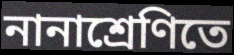
নানাশ্রেণিতে